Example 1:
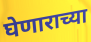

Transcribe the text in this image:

घेणाराच्या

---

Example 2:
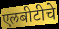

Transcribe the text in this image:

एलबीटीचे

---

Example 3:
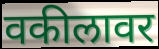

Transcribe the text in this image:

वकीलावर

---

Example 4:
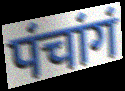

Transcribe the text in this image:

पंचांगं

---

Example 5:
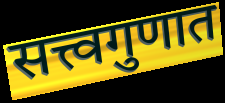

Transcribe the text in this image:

सत्त्वगुणात